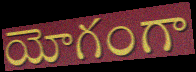
యోగంగా